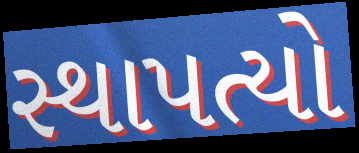
સ્થાપત્યો